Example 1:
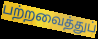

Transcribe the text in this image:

பற்றவைத்துப்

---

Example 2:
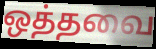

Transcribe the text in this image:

ஒத்தவை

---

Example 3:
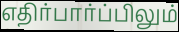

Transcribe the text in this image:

எதிர்பார்ப்பிலும்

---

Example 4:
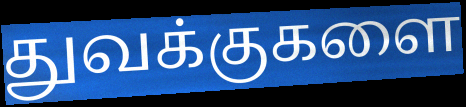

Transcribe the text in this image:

துவக்குகளை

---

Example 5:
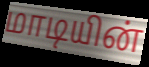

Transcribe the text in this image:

மாடியின்